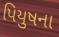
પિયુષના